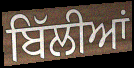
ਬਿੱਲੀਆਂ